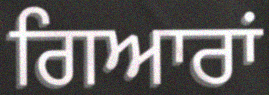
ਗਿਆਰਾਂ